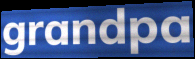
grandpa